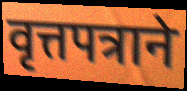
वृत्तपत्राने